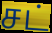
சட்